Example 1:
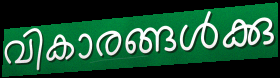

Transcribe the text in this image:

വികാരങ്ങൾക്കു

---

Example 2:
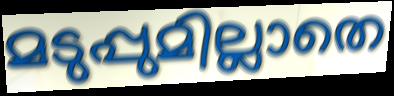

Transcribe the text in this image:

മടുപ്പുമില്ലാതെ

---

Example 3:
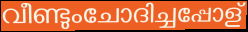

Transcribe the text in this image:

വീണ്ടുംചോദിച്ചപ്പോള്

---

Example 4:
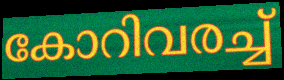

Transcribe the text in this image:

കോറിവരച്ച്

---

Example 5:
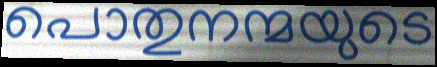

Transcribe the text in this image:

പൊതുനന്മയുടെ